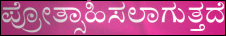
ಪ್ರೋತ್ಸಾಹಿಸಲಾಗುತ್ತದೆ